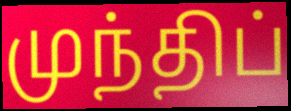
முந்திப்